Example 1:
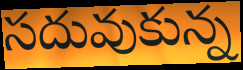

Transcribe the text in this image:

సదువుకున్న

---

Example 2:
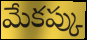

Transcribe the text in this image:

మేకప్కు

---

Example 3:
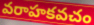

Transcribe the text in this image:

వరాహకవచం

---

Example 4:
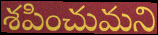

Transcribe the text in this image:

శపించుమని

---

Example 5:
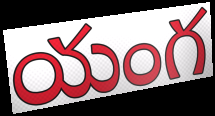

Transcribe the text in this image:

యంగ